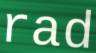
rad